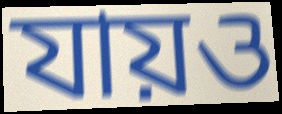
যায়ও